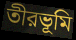
তীরভূমি